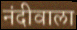
नंदीवाला